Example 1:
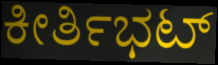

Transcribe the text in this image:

ಕೀರ್ತಿಭಟ್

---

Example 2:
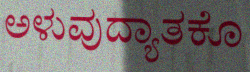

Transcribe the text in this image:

ಅಳುವುದ್ಯಾತಕೊ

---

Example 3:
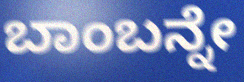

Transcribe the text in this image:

ಬಾಂಬನ್ನೇ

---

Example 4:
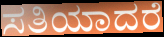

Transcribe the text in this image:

ಸತಿಯಾದರೆ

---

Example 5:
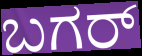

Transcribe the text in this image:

ಬಗರ್